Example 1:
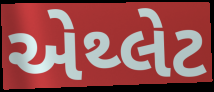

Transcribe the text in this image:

એથ્લેટ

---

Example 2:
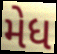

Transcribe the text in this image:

મેધ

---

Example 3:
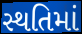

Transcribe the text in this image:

સ્થતિમાં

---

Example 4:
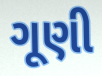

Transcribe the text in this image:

ગૂણી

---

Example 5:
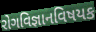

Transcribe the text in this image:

રોગવિજ્ઞાનવિષયક